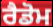
ਰੈਡੋਮ